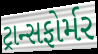
ટ્રાન્સફોર્મર